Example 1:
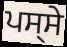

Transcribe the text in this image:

ਪਸ੍ਸੇ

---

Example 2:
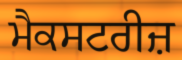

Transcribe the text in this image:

ਮੈਕਸਟਰੀਜ਼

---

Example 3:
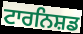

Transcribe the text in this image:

ਟਾਰਨਿਸ਼ਡ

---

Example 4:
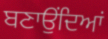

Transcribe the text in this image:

ਬਣਾਉਂਦਿਆਂ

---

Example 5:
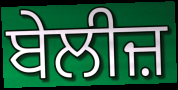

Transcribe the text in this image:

ਬੇਲੀਜ਼